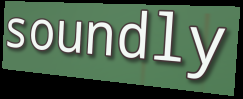
soundly